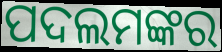
ପଦଲମଙ୍କର